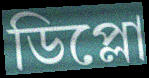
ডিপ্লো